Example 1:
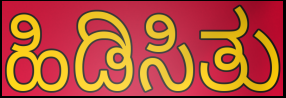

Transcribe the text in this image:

ಹಿಡಿಸಿತು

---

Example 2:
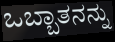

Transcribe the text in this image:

ಒಬ್ಬಾತನನ್ನು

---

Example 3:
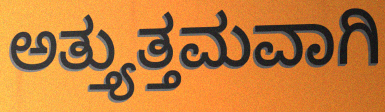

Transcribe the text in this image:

ಅತ್ತ್ಯುತ್ತಮವಾಗಿ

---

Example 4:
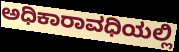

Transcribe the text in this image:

ಅಧಿಕಾರಾವಧಿಯಲ್ಲಿ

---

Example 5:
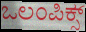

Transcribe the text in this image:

ಒಲಂಪಿಕ್ಸ್